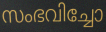
സംഭവിച്ചോ